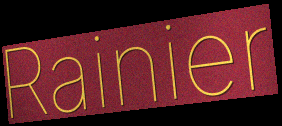
Rainier